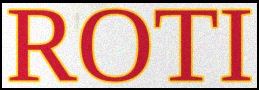
ROTI